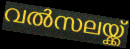
വൽസലയ്ക്ക്